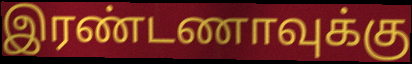
இரண்டணாவுக்கு